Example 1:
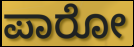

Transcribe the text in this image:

ಪಾರೋ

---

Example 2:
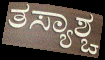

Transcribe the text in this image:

ತಸ್ಯಾಶ್ಚ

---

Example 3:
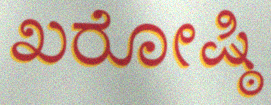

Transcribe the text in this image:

ಖರೋಷ್ಠಿ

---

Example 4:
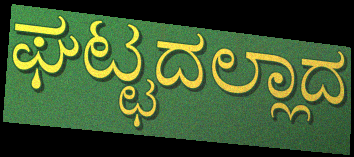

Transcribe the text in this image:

ಘಟ್ಟದಲ್ಲಾದ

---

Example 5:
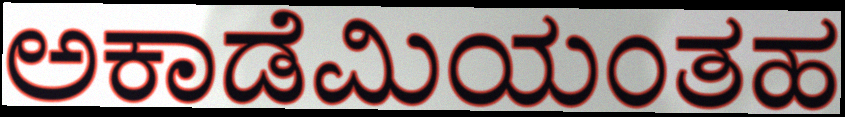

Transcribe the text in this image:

ಅಕಾಡೆಮಿಯಂತಹ